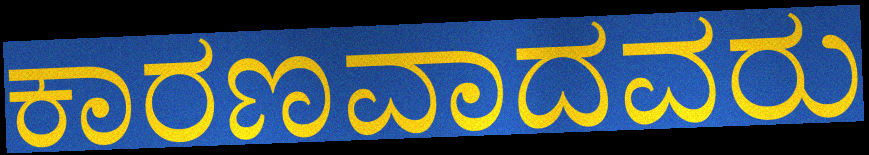
ಕಾರಣವಾದವರು